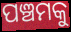
ପଞ୍ଚମକୁ